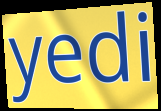
yedi